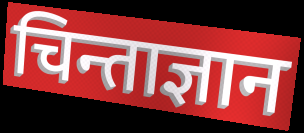
चिन्ताज्ञान